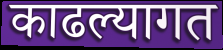
काढल्यागत